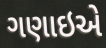
ગણાઇએ